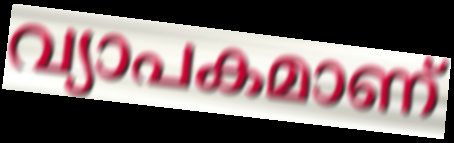
വ്യാപകമാണ്